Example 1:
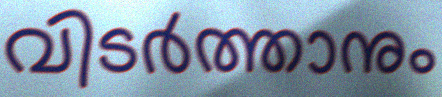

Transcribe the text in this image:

വിടർത്താനും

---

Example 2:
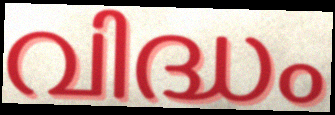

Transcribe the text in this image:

വിദ്ധം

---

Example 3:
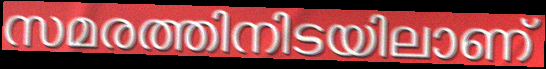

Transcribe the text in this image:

സമരത്തിനിടയിലാണ്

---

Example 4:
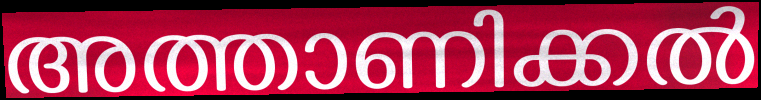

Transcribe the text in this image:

അത്താണിക്കൽ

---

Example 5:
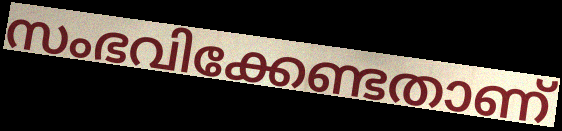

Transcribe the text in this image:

സംഭവിക്കേണ്ടതാണ്